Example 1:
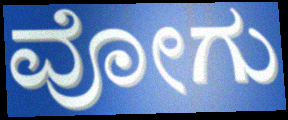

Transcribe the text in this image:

ವೋಗು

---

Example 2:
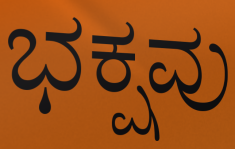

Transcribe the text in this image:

ಭಕ್ಷವು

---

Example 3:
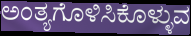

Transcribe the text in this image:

ಅಂತ್ಯಗೊಳಿಸಿಕೊಳ್ಳುವ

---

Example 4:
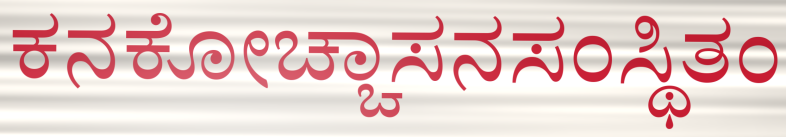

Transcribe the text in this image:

ಕನಕೋಚ್ಚಾಸನಸಂಸ್ಥಿತಂ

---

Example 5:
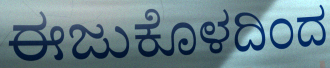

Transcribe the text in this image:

ಈಜುಕೊಳದಿಂದ